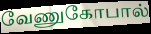
வேணுகோபால்